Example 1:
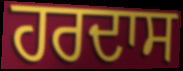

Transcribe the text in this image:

ਹਰਦਾਸ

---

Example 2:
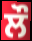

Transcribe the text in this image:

ਲੌ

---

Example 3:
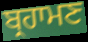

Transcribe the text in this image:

ਬ੍ਰਹਾਮਣ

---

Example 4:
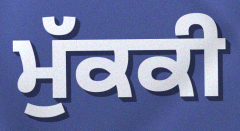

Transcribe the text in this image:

ਮੁੱਕਕੀ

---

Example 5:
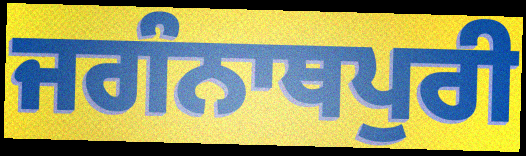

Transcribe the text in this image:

ਜਗੰਨਾਥਪੁਰੀ